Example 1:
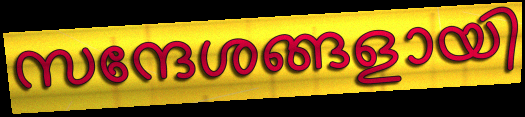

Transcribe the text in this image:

സന്ദേശങ്ങളായി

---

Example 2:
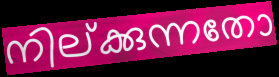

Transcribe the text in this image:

നില്ക്കുന്നതോ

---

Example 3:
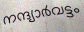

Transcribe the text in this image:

നന്ദ്യാർവട്ടം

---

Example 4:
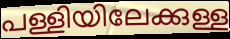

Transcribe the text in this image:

പള്ളിയിലേക്കുള്ള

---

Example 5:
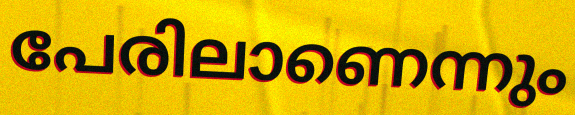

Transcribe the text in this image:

പേരിലാണെന്നും